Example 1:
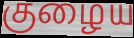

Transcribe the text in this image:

குழைய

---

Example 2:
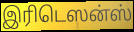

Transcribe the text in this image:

இரிடெஸன்ஸ்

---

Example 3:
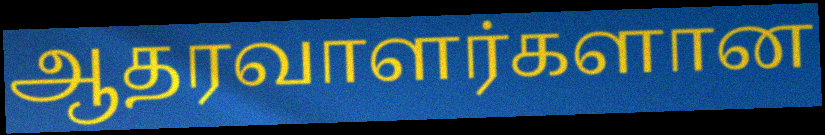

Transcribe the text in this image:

ஆதரவாளர்களான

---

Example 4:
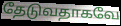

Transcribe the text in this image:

தேடுவதாகவே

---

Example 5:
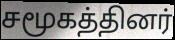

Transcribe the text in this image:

சமூகத்தினர்